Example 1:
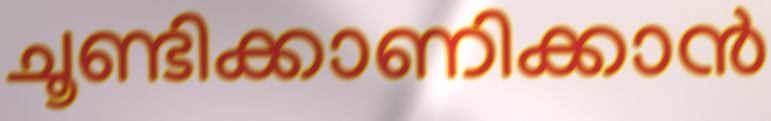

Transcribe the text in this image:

ചൂണ്ടിക്കാണിക്കാൻ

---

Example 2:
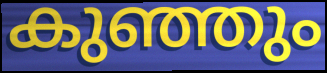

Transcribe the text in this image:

കുഞ്ഞും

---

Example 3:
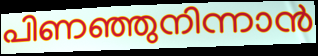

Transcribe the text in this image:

പിണഞ്ഞുനിന്നാൻ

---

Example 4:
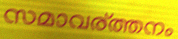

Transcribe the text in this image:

സമാവര്ത്തനം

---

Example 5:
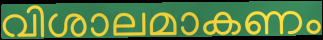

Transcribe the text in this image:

വിശാലമാകണം